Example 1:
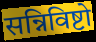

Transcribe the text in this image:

सन्निविष्टो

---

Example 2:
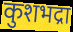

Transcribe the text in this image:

कुशभद्रा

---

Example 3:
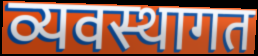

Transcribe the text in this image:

व्यवस्थागत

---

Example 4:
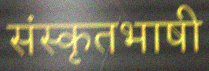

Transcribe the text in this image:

संस्कृतभाषी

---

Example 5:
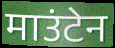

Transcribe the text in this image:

माउंटेन